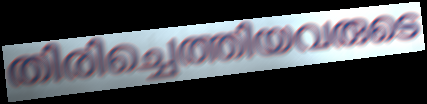
തിരിച്ചെത്തിയവരുടെ